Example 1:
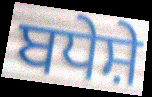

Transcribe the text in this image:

ਬਧੇਸ਼ੇ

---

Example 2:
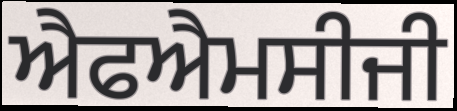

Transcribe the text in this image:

ਐਫਐਮਸੀਜੀ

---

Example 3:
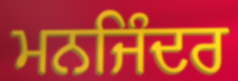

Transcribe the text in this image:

ਮਨਜਿੰਦਰ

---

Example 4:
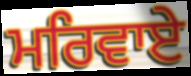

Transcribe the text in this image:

ਮਰਿਵਾਏ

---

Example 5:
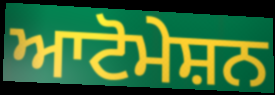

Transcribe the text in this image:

ਆਟੋਮੇਸ਼ਨ